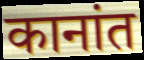
कानांत